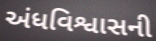
અંધવિશ્વાસની